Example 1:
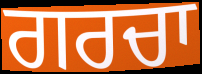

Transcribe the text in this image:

ਗਰਚਾ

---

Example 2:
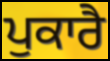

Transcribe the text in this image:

ਪੁਕਾਰੈ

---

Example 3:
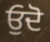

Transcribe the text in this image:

ਓੁਦੋ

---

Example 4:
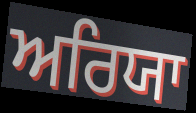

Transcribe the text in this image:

ਅਰਿਯਾ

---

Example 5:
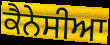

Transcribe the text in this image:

ਕੈਨੇਸੀਆ